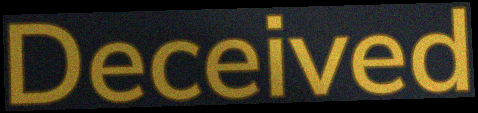
Deceived